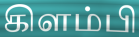
கிளம்பி